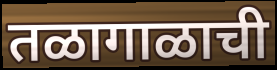
तळागाळाची